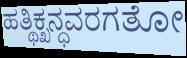
ಹತ್ಥಿಕ್ಖನ್ಧವರಗತೋ